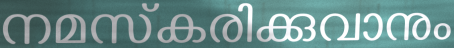
നമസ്‌കരിക്കുവാനും